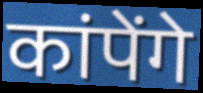
कांपेंगे